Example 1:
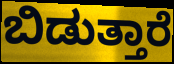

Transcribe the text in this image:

ಬಿಡುತ್ತಾರೆ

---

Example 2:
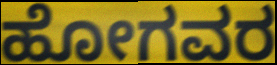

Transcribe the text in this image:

ಹೋಗವರ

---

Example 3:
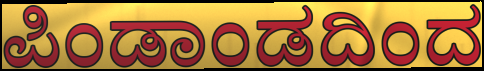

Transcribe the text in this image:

ಪಿಂಡಾಂಡದಿಂದ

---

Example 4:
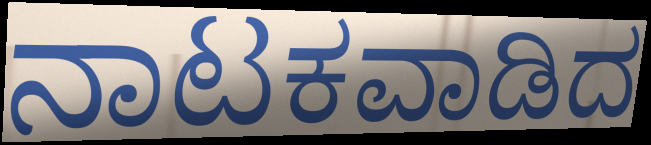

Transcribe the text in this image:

ನಾಟಕವಾಡಿದ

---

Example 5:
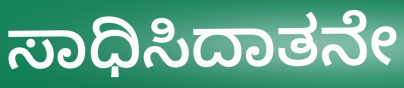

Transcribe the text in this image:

ಸಾಧಿಸಿದಾತನೇ